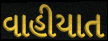
વાહીયાત